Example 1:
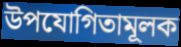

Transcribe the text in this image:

উপযোগিতামূলক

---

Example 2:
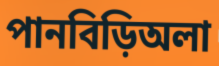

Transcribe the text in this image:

পানবিড়িঅলা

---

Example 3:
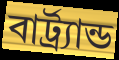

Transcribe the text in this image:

বার্ট্র্যান্ড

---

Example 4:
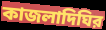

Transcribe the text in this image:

কাজলাদিঘির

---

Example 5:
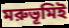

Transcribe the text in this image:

মরুভূমিই